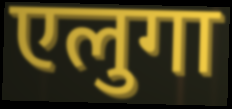
एलुगा